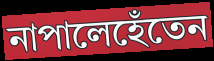
নাপালেহেঁতেন